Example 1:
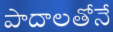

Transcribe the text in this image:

పాదాలతోనే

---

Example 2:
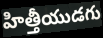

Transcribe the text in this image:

హిత్తీయుడగు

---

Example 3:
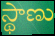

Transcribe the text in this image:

స్థాణు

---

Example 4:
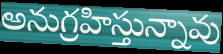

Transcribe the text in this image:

అనుగ్రహిస్తున్నావు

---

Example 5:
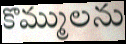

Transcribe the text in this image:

కొమ్ములను